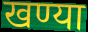
खण्या